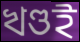
খণ্ডই